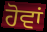
ਹੋਵਾਂ